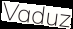
Vaduz